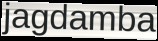
jagdamba